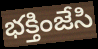
భక్తింజేసి